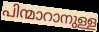
പിന്മാറാനുള്ള